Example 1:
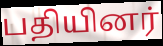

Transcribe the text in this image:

பதியினர்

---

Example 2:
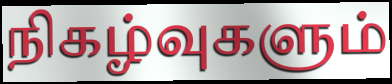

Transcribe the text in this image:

நிகழ்வுகளும்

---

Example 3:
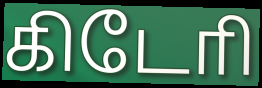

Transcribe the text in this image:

கிடேரி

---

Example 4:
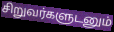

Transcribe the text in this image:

சிறுவர்களுடனும்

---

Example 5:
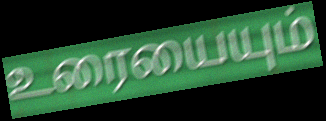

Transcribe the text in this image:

உரையையும்